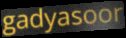
gadyasoor